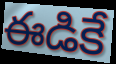
ఈడికే